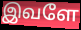
இவளே